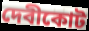
দেবীকোট